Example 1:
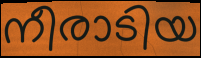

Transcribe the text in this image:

നീരാടിയ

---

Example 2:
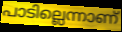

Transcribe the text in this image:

പാടില്ലെന്നാണ്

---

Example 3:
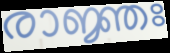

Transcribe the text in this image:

രാജ്ഞഃ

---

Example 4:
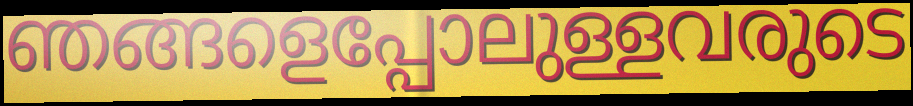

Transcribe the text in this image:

ഞങ്ങളെപ്പോലുള്ളവരുടെ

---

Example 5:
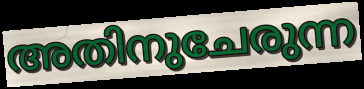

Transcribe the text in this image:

അതിനുചേരുന്ന